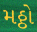
મઠ્ઠો